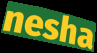
nesha